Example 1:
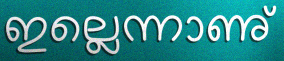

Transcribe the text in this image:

ഇല്ലെന്നാണു്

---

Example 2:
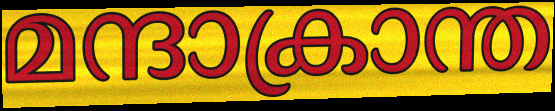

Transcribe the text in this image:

മന്ദാക്രാന്ത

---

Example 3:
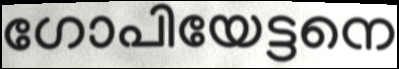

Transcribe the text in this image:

ഗോപിയേട്ടനെ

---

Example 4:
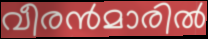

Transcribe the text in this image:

വീരൻമാരിൽ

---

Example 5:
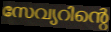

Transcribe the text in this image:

സേവ്യറിന്റെ